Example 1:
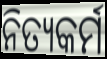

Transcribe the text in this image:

ନିତ୍ଯକର୍ମ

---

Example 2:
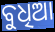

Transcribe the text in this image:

ବୁଧିଆ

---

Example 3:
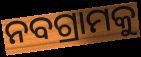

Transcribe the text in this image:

ନବଗ୍ରାମକୁ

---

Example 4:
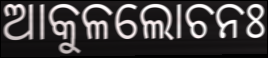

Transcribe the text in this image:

ଆକୁଳଲୋଚନଃ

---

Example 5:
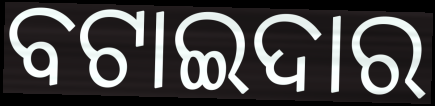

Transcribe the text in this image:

ବଟାଇଦାର